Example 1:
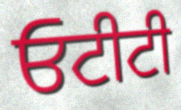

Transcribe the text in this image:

ਓਟੀਟੀ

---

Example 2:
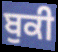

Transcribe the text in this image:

ਬੁਕੀ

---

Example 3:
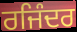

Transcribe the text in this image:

ਰਜਿੰਦਰ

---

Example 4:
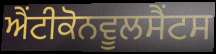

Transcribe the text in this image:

ਐਂਟੀਕੋਨਵੂਲਸੈਂਟਸ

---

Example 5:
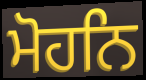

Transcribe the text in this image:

ਮੋਹਨਿ